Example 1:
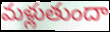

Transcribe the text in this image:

మళ్లుతుందా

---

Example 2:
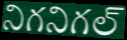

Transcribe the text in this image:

నిగనిగల్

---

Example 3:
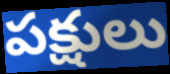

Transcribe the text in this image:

పక్షులు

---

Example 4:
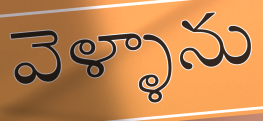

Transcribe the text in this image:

వెళ్ళాను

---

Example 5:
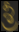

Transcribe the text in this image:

శ్రీ